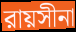
রায়সীনা